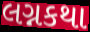
લગ્નકથા